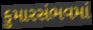
કુમારસંભવમાં